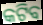
କଟିବ